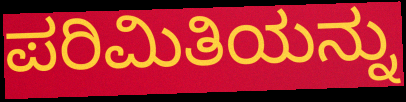
ಪರಿಮಿತಿಯನ್ನು